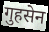
गुहसेन